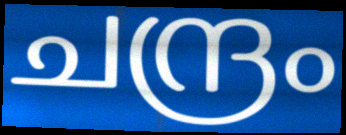
ചന്ദ്രം